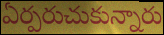
ఏర్పరుచుకున్నారు